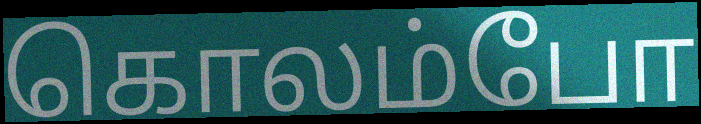
கொலம்போ